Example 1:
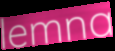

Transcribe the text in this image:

lemna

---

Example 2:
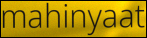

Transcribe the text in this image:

mahinyaat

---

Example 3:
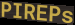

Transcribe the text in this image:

PIREPs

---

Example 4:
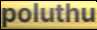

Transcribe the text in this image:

poluthu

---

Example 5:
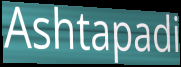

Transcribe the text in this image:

Ashtapadi